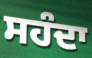
ਸਹੰਦਾ